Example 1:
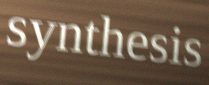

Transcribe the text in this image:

synthesis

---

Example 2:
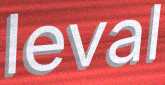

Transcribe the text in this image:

leval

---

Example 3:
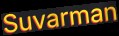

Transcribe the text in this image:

Suvarman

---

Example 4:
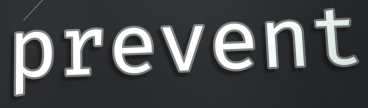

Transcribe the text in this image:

prevent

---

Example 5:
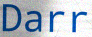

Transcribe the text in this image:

Darr